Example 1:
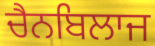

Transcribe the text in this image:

ਚੈਨਬਿਲਾਜ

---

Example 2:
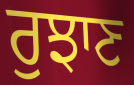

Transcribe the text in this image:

ਰੁਝਾਣ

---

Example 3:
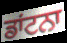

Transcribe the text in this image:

ਡਾਂਟਨਾ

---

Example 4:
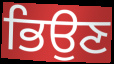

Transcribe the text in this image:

ਭਿਉਣ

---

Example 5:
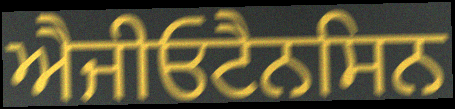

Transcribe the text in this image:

ਐਜੀਓਟੈਨਸਿਨ